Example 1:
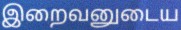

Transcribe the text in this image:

இறைவனுடைய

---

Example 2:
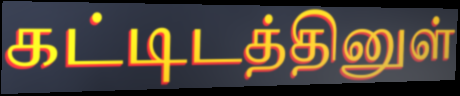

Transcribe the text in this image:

கட்டிடத்தினுள்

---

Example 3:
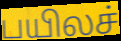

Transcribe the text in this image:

பயிலச்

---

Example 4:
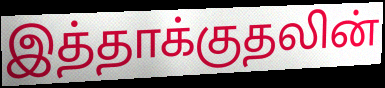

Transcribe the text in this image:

இத்தாக்குதலின்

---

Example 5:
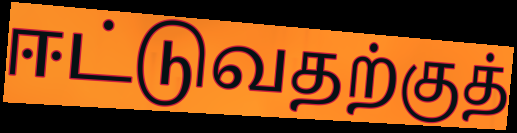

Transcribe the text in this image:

ஈட்டுவதற்குத்